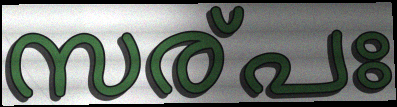
സര്പഃ